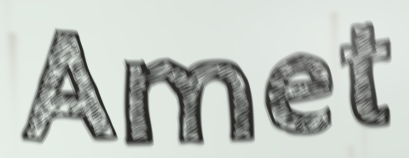
Amet